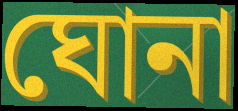
ঘোনা